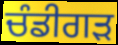
ਚੰਡੀਗੜ